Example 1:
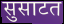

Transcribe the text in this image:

सुसाटत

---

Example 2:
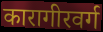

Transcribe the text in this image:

कारागीरवर्ग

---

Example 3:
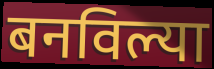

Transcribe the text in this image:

बनविल्या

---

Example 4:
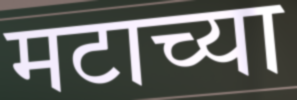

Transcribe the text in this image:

मटाच्या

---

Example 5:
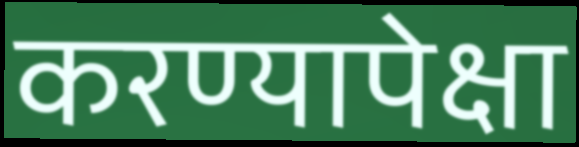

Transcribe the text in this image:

करण्यापेक्षा